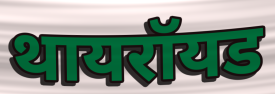
थायरॉयड